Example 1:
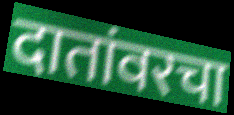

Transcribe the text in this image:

दातांवरचा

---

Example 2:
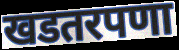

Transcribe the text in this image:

खडतरपणा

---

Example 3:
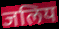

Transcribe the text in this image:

जलिय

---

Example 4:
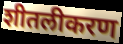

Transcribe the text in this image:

शीतलीकरण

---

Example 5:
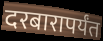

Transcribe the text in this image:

दरबारापर्यंत